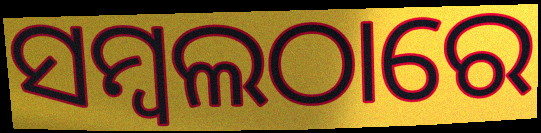
ସମ୍ବଲଠାରେ